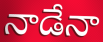
నాడేనా